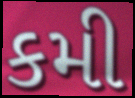
કમી